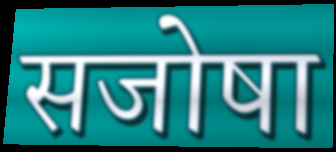
सजोषा